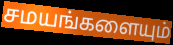
சமயங்களையும்